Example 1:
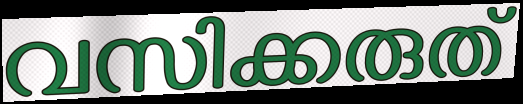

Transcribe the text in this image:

വസിക്കരുത്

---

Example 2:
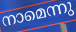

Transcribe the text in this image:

നാമെന്നു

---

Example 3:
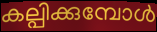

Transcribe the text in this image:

കല്പിക്കുമ്പോൾ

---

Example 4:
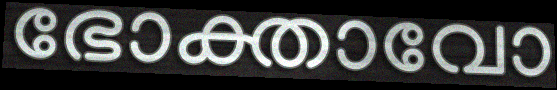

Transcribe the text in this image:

ഭോക്താവോ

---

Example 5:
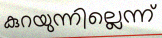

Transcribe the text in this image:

കുറയുന്നില്ലെന്ന്